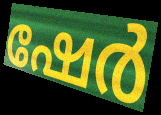
ഷേർ